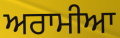
ਅਰਾਮੀਆ